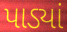
પાડ્યાં